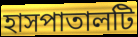
হাসপাতালটি